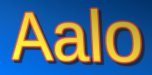
Aalo